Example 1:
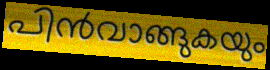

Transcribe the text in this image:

പിൻവാങ്ങുകയും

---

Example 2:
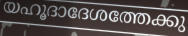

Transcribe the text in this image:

യഹൂദാദേശത്തേക്കു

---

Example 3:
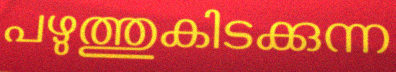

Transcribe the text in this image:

പഴുത്തുകിടക്കുന്ന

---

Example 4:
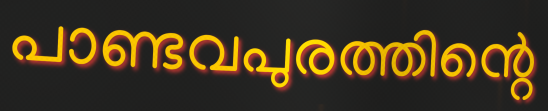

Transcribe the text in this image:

പാണ്ടവപുരത്തിന്റെ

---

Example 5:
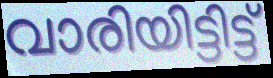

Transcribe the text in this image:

വാരിയിട്ടിട്ട്